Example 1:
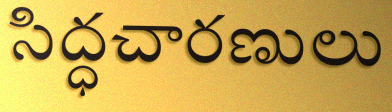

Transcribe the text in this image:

సిద్ధచారణులు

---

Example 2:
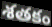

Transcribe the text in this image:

శతకం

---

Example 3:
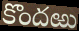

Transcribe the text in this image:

కొందఱు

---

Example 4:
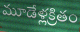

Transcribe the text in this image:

మూడేళ్లక్రితం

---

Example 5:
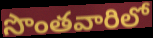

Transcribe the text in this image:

సొంతవారిలో